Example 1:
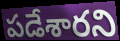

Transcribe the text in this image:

పడేశారని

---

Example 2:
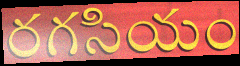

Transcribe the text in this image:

రగసియం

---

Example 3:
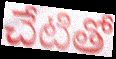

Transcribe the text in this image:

చేటితో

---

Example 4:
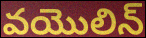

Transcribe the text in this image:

వయొలిన్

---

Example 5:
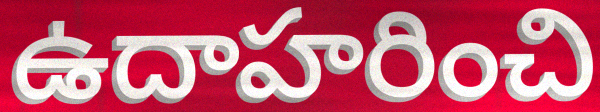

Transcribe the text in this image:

ఉదాహరించి